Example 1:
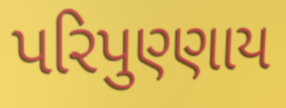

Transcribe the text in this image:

પરિપુણ્ણાય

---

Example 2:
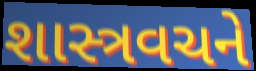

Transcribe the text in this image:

શાસ્ત્રવચને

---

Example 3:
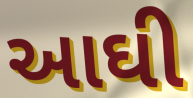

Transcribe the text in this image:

આઘી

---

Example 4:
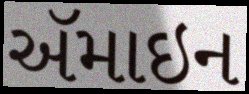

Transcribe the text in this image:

ઍમાઇન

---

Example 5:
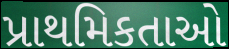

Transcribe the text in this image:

પ્રાથમિકતાઓ